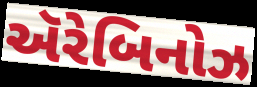
ઍરેબિનોઝ